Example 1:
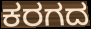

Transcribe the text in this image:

ಕರಗದ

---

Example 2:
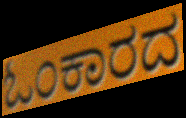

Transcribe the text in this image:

ಓಂಕಾರದ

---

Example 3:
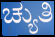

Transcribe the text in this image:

ಚ್ಯುತಿ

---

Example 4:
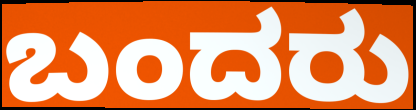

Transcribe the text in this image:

ಬಂದರು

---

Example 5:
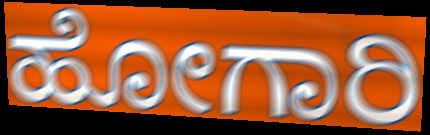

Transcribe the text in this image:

ಹೋಗಾರಿ